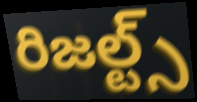
రిజల్ట్స్